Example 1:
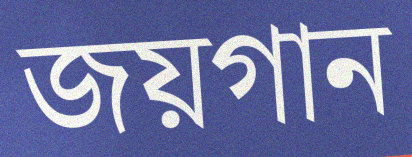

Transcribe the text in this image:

জয়গান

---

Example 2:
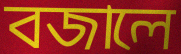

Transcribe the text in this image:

বজালে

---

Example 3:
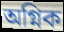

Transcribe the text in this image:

অগ্নিক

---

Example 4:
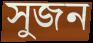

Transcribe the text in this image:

সুজন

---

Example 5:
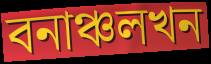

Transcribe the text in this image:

বনাঞ্চলখন